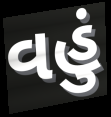
વહું